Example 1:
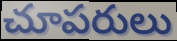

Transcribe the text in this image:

చూపరులు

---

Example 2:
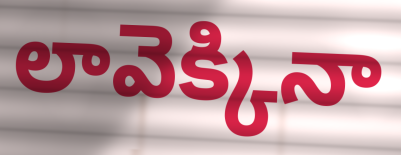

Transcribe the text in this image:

లావెక్కినా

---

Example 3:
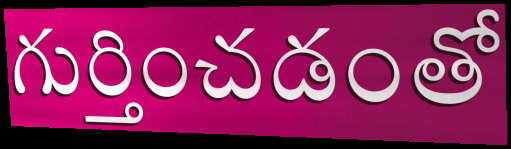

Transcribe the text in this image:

గుర్తించడంతో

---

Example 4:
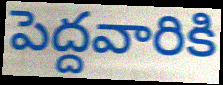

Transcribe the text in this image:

పెద్దవారికి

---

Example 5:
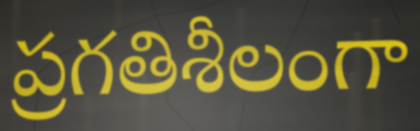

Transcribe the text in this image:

ప్రగతిశీలంగా